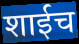
शाईच